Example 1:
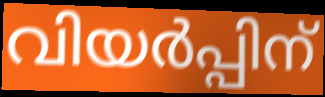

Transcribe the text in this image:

വിയർപ്പിന്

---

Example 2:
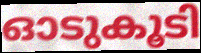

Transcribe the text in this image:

ഓടുകൂടി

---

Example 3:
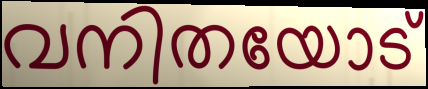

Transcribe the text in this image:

വനിതയോട്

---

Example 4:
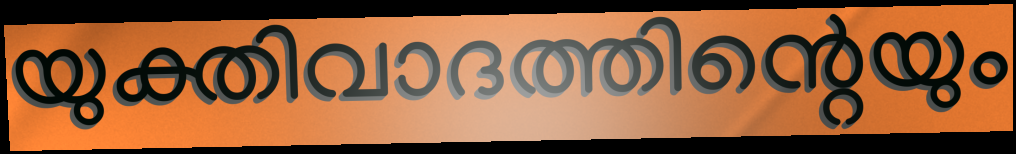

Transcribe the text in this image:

യുക്തിവാദത്തിന്റെയും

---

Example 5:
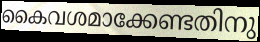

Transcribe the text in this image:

കൈവശമാക്കേണ്ടതിനു